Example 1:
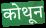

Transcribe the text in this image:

कोथून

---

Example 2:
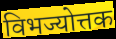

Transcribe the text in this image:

विभज्योत्तक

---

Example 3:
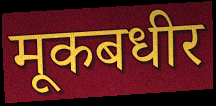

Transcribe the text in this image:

मूकबधीर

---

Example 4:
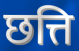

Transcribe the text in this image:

छत्ति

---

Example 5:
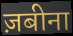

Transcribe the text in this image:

ज़बीना